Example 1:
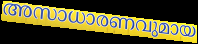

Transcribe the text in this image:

അസാധാരണവുമായ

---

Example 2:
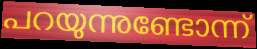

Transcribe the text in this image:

പറയുന്നുണ്ടോന്ന്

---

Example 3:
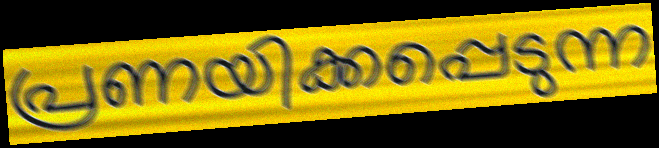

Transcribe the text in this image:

പ്രണയിക്കപ്പെടുന്ന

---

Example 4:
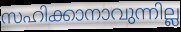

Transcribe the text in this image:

സഹിക്കാനാവുന്നില്ല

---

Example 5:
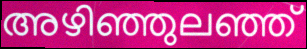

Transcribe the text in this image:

അഴിഞ്ഞുലഞ്ഞ്